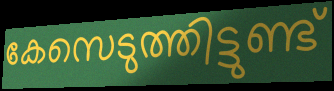
കേസെടുത്തിട്ടുണ്ട്